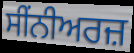
ਸੀਂਨੀਅਰਜ਼